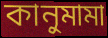
কানুমামা